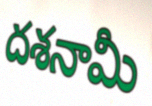
దశనామీ